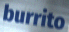
burrito